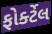
ફોર્ક્ટેલ